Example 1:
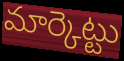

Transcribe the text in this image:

మార్కెట్టు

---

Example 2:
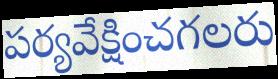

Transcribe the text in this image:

పర్యవేక్షించగలరు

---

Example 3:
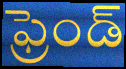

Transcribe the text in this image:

ఫ్రెండ్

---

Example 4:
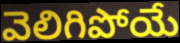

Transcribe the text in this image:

వెలిగిపోయే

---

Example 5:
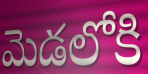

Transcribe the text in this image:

మెడలోకి